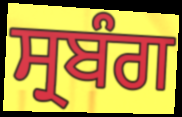
ਸ੍ਰਬੰਗ